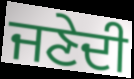
ਜਣੇਦੀ